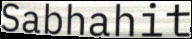
Sabhahit